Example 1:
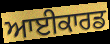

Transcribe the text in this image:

ਆਈਕਾਰਡ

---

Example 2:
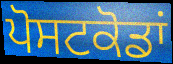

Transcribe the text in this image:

ਪੋਸਟਕੋਡਾਂ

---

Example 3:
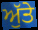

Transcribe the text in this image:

ਅੁੱਤੇ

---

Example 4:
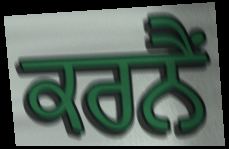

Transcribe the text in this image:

ਕਰਨੈਂ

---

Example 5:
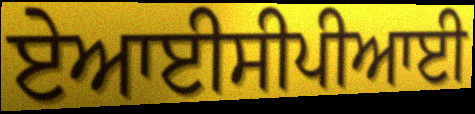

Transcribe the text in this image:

ਏਆਈਸੀਪੀਆਈ